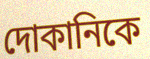
দোকানিকে